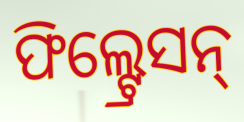
ଫିଲ୍ଟ୍ରେସନ୍